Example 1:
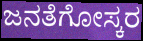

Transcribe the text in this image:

ಜನತೆಗೋಸ್ಕರ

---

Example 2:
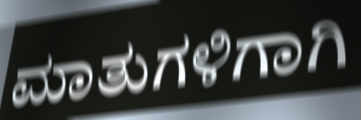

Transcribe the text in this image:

ಮಾತುಗಳಿಗಾಗಿ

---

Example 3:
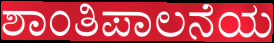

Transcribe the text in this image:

ಶಾಂತಿಪಾಲನೆಯ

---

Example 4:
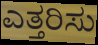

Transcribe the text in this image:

ಎತ್ತರಿಸು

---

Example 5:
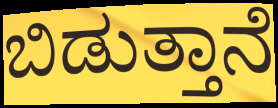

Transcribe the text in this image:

ಬಿಡುತ್ತಾನೆ